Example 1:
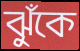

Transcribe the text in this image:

ঝুঁকে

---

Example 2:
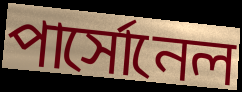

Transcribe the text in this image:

পার্সোনেল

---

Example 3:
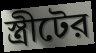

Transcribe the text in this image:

স্ত্রীটের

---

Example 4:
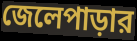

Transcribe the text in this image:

জেলেপাড়ার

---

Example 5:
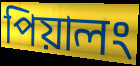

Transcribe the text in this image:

পিয়ালং